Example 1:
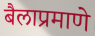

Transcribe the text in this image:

बैलाप्रमाणे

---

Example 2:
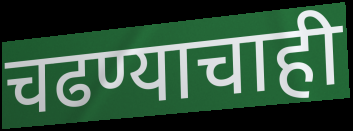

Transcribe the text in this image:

चढण्याचाही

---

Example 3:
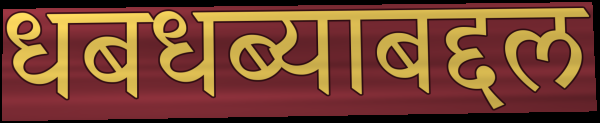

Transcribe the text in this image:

धबधब्याबद्दल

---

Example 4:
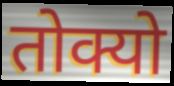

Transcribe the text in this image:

तोक्यो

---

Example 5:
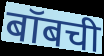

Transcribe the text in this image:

बॉबची